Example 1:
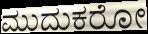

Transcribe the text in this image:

ಮುದುಕರೋ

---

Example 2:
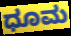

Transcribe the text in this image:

ಧೂಮ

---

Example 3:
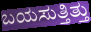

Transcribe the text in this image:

ಬಯಸುತ್ತಿತ್ತು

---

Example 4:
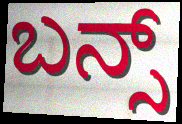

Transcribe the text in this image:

ಬನ್ಸ್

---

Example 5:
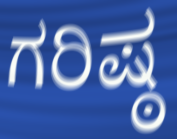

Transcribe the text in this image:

ಗರಿಷ್ಠ